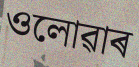
ওলোৱাৰ